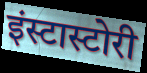
इंस्टास्टोरी